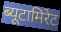
ब्यूटामिरेट